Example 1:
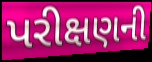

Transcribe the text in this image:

પરીક્ષણની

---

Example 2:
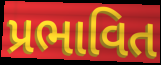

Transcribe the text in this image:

પ્રભાવિત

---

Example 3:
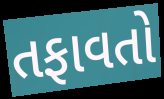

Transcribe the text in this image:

તફાવતો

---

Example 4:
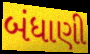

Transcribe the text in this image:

બંધાણી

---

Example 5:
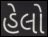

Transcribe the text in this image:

હેલો